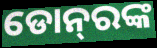
ଡୋନ୍‌ରଙ୍କ